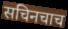
सचिनचाच